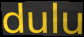
dulu